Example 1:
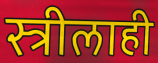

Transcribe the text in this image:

स्त्रीलाही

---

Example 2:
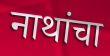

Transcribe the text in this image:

नाथांचा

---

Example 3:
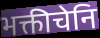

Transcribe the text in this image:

भक्तीचेनि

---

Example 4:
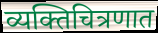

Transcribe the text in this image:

व्यक्तिचित्रणात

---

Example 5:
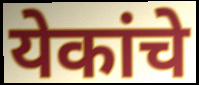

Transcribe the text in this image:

येकांचे